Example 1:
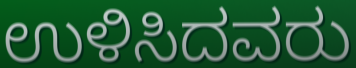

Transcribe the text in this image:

ಉಳಿಸಿದವರು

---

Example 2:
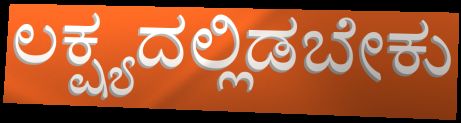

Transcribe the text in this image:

ಲಕ್ಷ್ಯದಲ್ಲಿಡಬೇಕು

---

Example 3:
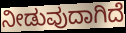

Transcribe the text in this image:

ನೀಡುವುದಾಗಿದೆ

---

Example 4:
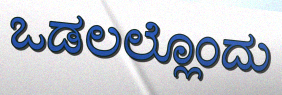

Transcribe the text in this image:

ಒಡಲಲ್ಲೊಂದು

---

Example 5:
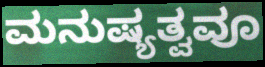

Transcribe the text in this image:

ಮನುಷ್ಯತ್ವವೂ